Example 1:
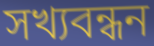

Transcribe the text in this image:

সখ্যবন্ধন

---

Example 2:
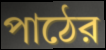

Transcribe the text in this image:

পাঠের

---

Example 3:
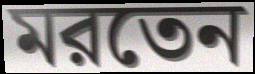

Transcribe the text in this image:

মরতেন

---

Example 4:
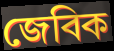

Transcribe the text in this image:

জেবিক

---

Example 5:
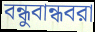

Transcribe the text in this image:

বন্ধুবান্ধবরা